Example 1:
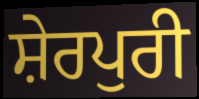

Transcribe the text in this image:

ਸ਼ੇਰਪੁਰੀ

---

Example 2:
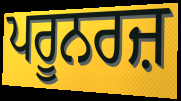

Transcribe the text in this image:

ਪਰੂਨਰਜ਼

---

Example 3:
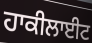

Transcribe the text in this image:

ਹਾਕੀਲਾਈਟ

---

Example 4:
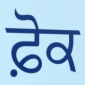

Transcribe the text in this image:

ਫ਼ੋਕ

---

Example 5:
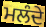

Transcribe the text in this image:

ਮਲੰਦੇ